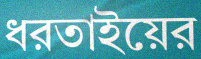
ধরতাইয়ের